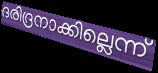
ദരിദ്രനാക്കില്ലെന്ന്